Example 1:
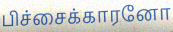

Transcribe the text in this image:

பிச்சைக்காரனோ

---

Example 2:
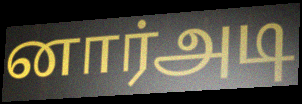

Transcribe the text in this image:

னார்அடி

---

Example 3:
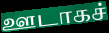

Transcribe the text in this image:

ஊடாகச்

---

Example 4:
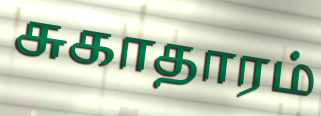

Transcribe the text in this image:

சுகாதாரம்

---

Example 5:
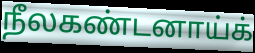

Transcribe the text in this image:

நீலகண்டனாய்க்